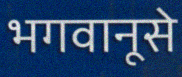
भगवानूसे